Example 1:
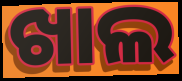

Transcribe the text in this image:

ଖାଲ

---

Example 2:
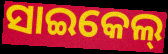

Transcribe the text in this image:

ସାଇକେଲ୍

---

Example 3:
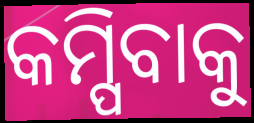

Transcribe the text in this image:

କମ୍ପିବାକୁ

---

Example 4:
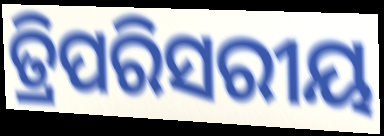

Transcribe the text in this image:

ତ୍ରିପରିସରୀୟ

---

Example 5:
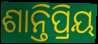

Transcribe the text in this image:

ଶାନ୍ତିପ୍ରିୟ